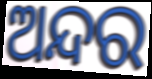
ଅନ୍ଦର